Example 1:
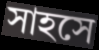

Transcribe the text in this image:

সাহসে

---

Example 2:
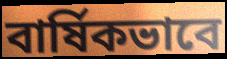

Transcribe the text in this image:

বার্ষিকভাবে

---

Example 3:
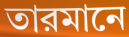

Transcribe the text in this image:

তারমানে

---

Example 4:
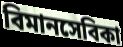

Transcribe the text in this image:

বিমানসেবিকা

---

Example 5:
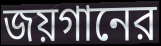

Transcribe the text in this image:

জয়গানের